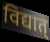
विद्यात्